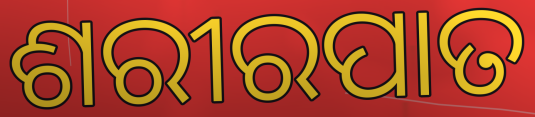
ଶରୀରପାତ